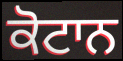
ਕੋਟਾਨ